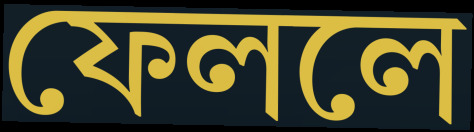
ফেললে